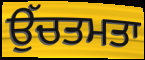
ਉੱਚਤਮਤਾ